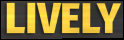
LIVELY